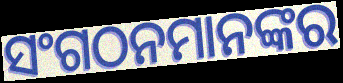
ସଂଗଠନମାନଙ୍କର